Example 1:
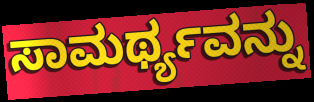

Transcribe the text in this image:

ಸಾಮರ್ಥ್ಯವನ್ನು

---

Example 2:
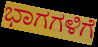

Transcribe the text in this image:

ಭಾಗಗಳಿಗೆ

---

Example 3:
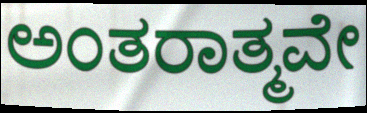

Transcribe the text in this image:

ಅಂತರಾತ್ಮವೇ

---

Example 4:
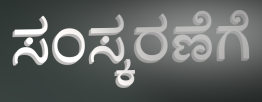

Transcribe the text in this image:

ಸಂಸ್ಕರಣೆಗೆ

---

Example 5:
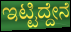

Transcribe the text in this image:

ಇಟ್ಟಿದ್ದೇನೆ